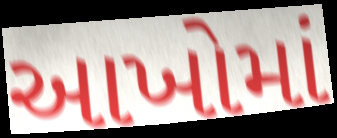
આખોમાં